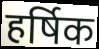
हर्षिक